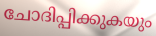
ചോദിപ്പിക്കുകയും